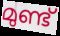
മുണ്ട്